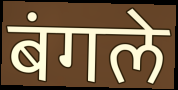
बंगले